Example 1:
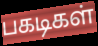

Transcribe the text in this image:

பகடிகள்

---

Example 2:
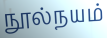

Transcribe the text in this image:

நூல்நயம்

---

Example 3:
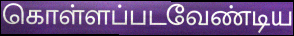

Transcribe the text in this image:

கொள்ளப்படவேண்டிய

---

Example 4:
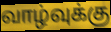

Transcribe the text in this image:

வாழ்வுக்கு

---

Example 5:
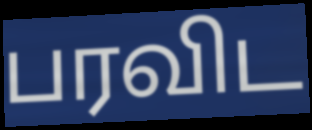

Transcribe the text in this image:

பரவிட